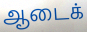
ஆடைக்